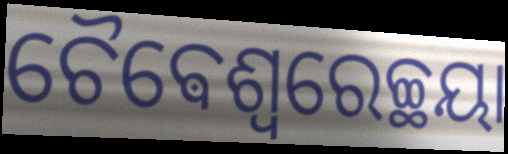
ଚୈଵେଶ୍ଵରେଚ୍ଛୟା